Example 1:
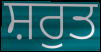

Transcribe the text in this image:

ਸ਼ਰੁਤ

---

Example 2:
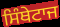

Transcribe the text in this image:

ਸਿੰਥੇਟਾਜ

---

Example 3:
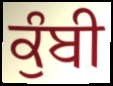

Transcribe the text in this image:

ਕੁੰਬੀ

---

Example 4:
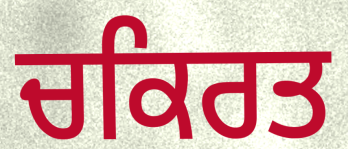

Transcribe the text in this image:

ਚਕਿਰਤ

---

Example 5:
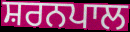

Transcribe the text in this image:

ਸ਼ਰਨਪਾਲ